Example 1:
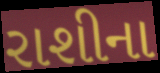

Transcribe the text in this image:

રાશીના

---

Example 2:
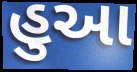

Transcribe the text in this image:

હુઆ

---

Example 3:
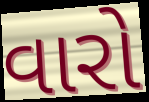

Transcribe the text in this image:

વારો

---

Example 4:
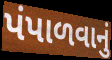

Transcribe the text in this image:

પંપાળવાનું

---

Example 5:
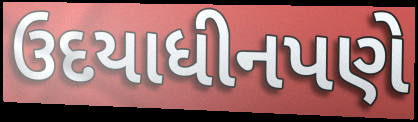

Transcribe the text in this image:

ઉદયાધીનપણે